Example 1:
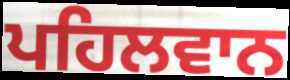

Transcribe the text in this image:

ਪਹਿਲਵਾਨ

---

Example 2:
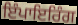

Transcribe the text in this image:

ਇੰਪਾਇਰਿੰਗ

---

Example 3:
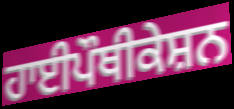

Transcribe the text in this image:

ਹਾਈਪੌਥੀਕੇਸ਼ਨ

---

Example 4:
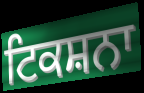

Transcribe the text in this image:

ਟਿਕਸ਼ਨਾ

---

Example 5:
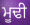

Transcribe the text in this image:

ਮੂਢੀ